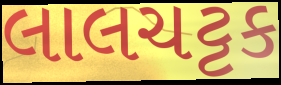
લાલચટ્ટક